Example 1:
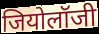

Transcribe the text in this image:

जियोलॉजी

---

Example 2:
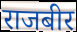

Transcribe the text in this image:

राजबीर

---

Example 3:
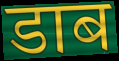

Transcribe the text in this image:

डाब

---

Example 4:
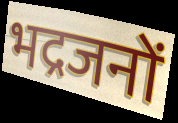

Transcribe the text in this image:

भद्रजनों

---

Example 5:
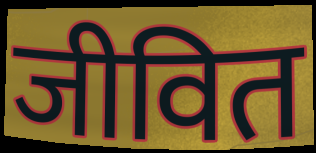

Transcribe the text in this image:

जीवित